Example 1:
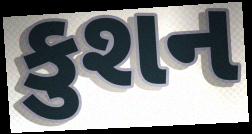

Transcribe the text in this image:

કુશન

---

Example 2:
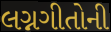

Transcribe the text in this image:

લગ્નગીતોની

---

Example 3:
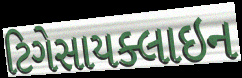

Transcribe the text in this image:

ટિગેસાયક્લાઇન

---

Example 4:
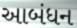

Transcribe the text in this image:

આબંધન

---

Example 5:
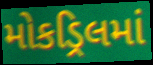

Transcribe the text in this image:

મોકડ્રિલમાં